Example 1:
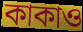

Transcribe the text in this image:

কাকাও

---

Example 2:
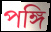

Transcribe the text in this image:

পঙ্গি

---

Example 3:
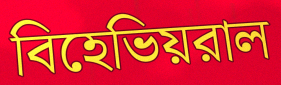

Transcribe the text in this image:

বিহেভিয়রাল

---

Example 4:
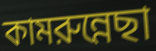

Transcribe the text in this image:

কামরুন্নেছা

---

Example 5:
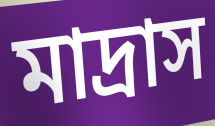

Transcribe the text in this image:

মাদ্রাস